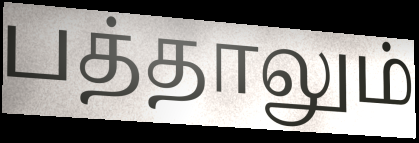
பத்தாலும்